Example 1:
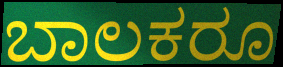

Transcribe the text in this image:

ಬಾಲಕರೂ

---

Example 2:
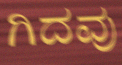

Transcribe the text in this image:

ಗಿದವು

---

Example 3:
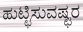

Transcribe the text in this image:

ಹುಟ್ಟಿಸುವಷ್ಟರ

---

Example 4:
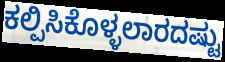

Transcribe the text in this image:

ಕಲ್ಪಿಸಿಕೊಳ್ಳಲಾರದಷ್ಟು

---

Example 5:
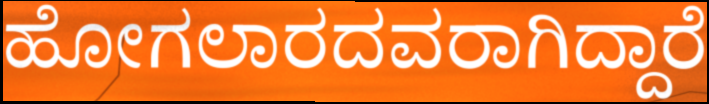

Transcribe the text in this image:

ಹೋಗಲಾರದವರಾಗಿದ್ದಾರೆ